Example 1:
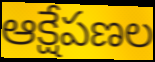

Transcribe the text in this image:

ఆక్షేపణల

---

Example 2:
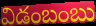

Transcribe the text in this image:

విడంబంబు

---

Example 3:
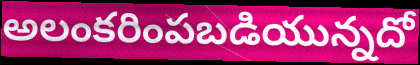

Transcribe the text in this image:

అలంకరింపబడియున్నదో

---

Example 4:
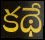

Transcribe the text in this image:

కథే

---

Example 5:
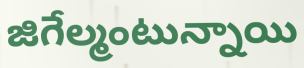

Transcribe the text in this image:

జిగేల్మంటున్నాయి